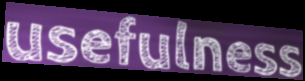
usefulness